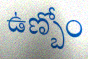
ఉణ్బోం